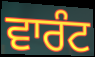
ਵਾਰੰਟ